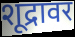
शूद्रावर